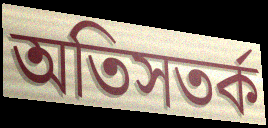
অতিসতর্ক